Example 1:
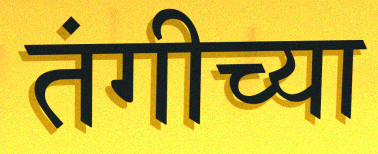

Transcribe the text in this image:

तंगीच्या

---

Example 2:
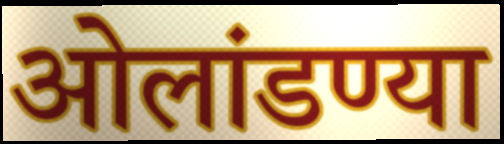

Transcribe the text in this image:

ओलांडण्या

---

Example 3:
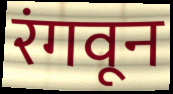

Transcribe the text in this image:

रंगवून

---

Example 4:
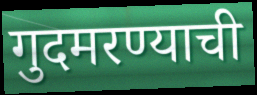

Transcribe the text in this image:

गुदमरण्याची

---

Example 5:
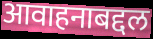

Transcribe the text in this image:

आवाहनाबद्दल